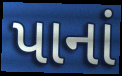
પાનાં